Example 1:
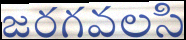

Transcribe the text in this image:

జరగవలసి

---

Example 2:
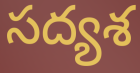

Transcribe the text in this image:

సద్యశ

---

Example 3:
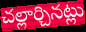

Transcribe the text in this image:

చల్లార్చినట్లు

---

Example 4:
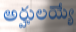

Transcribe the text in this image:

అర్హులయ్యే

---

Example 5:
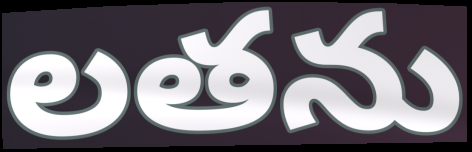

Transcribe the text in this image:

లతను